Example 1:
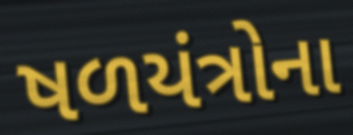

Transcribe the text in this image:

ષળયંત્રોના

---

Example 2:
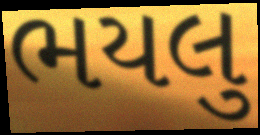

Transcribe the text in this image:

ભયલુ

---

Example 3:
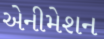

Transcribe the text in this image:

એનીમેશન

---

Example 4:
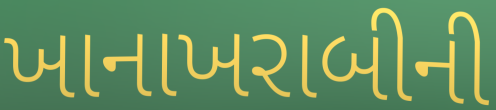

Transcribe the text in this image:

ખાનાખરાબીની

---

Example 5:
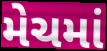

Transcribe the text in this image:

મેચમાં